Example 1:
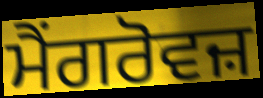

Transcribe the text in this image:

ਮੈਂਗਰੋਵਜ਼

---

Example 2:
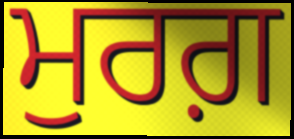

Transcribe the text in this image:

ਮੁਰਗ਼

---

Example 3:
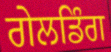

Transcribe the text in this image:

ਗੇਲਡਿੰਗ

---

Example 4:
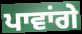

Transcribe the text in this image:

ਪਾਵਾਂਗੇ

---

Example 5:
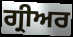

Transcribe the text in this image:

ਗ੍ਰੀਅਰ